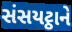
સંસયટ્ઠાને